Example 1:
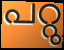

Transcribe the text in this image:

പറ്റു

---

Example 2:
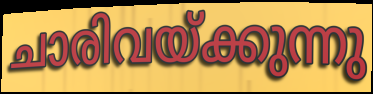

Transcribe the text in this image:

ചാരിവയ്ക്കുന്നു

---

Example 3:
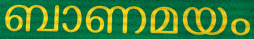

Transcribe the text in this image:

ബാണമയം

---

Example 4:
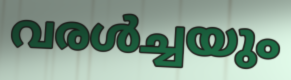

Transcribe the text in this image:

വരൾച്ചയും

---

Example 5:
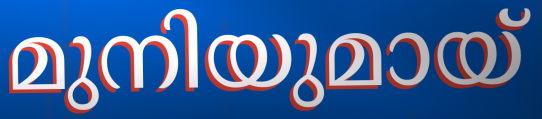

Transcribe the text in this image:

മുനിയുമായ്